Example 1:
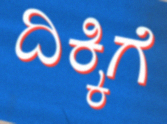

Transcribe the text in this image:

ದಿಕ್ಕಿಗೆ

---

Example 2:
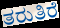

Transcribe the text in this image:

ತರುತಿರೆ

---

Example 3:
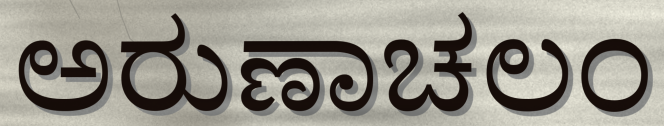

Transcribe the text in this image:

ಅರುಣಾಚಲಂ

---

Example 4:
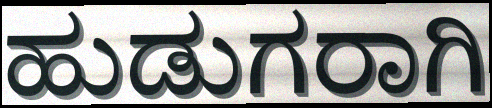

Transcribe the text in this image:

ಹುಡುಗರಾಗಿ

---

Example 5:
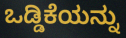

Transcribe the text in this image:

ಒಡ್ಡಿಕೆಯನ್ನು